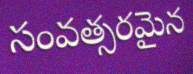
సంవత్సరమైన